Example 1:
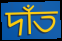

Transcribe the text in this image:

দাঁত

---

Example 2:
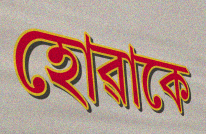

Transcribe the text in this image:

হোৱাকে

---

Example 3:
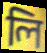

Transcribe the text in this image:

লি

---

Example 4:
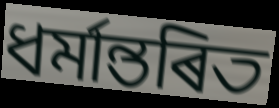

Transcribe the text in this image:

ধৰ্মান্তৰিত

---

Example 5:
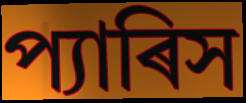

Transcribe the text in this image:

প্যাৰিস